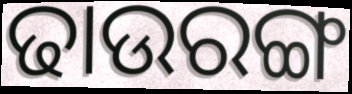
ଢାଉରଙ୍ଗ